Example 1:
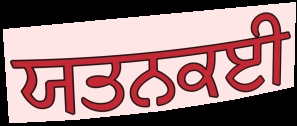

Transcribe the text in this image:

ਯਤਨਕਈ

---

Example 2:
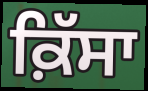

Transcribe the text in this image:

ਕ਼ਿੱਸਾ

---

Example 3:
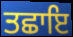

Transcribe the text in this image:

ਤਛਾਇ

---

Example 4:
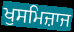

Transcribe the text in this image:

ਖੁਸਮਿਜ਼ਾਜ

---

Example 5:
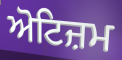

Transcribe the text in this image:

ਅੋਟਿਜ਼ਮ